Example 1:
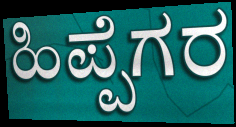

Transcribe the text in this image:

ಹಿಪ್ಪೆಗರ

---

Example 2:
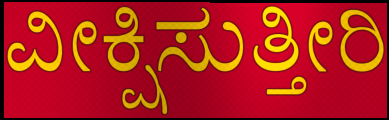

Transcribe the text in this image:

ವೀಕ್ಷಿಸುತ್ತೀರಿ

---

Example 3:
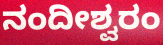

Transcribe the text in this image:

ನಂದೀಶ್ವರಂ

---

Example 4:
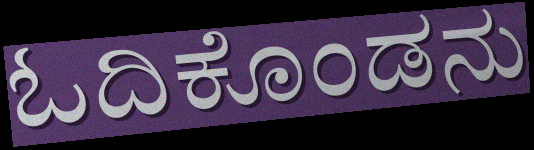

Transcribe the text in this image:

ಓದಿಕೊಂಡನು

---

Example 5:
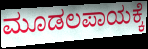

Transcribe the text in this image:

ಮೂಡಲಪಾಯಕ್ಕೆ